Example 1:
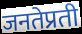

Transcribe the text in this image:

जनतेप्रती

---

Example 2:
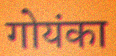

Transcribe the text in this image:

गोयंका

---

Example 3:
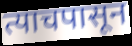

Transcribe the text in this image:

त्याचपासून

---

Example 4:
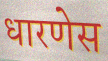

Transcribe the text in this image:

धारणेस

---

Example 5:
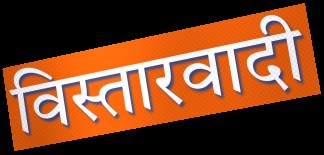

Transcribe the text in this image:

विस्तारवादी